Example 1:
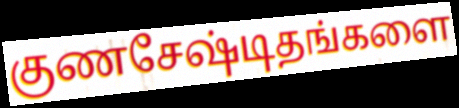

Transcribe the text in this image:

குணசேஷ்டிதங்களை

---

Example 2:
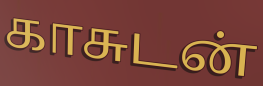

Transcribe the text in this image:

காசுடன்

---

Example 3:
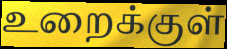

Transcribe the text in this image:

உறைக்குள்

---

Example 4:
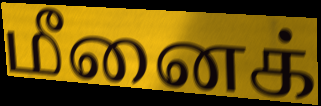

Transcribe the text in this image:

மீனைக்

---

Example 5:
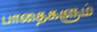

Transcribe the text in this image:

பாதைகளும்